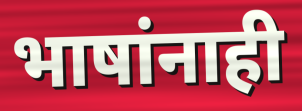
भाषांनाही